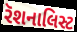
રૅશનાલિસ્ટ